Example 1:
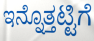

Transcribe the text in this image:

ಇನ್ನೊತ್ತಟ್ಟಿಗೆ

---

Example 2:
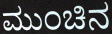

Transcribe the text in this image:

ಮುಂಚಿನ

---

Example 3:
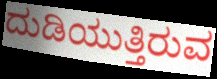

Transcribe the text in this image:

ದುಡಿಯುತ್ತಿರುವ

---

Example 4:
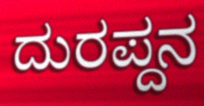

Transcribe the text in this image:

ದುರಪ್ದನ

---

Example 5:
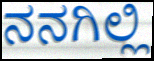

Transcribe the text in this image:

ನನಗಿಲ್ಲಿ